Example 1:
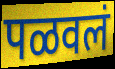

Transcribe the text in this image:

पळवलं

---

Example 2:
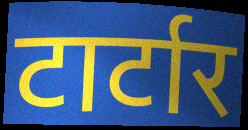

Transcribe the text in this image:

टार्टार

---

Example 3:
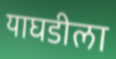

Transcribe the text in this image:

याघडीला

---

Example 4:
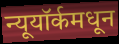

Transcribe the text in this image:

न्यूयॉर्कमधून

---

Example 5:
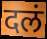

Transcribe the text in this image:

दलं